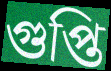
গুপ্তি